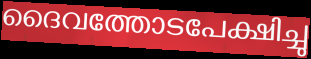
ദൈവത്തോടപേക്ഷിച്ചു